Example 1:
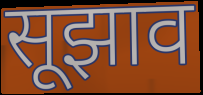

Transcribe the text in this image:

सूझाव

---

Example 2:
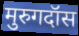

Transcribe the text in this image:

मुरुगदॉस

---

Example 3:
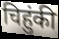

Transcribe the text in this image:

चिहुंकी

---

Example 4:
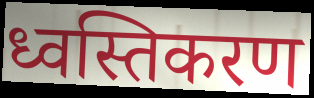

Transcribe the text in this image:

ध्वस्तिकरण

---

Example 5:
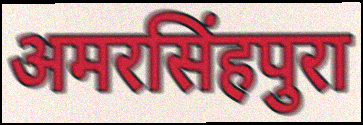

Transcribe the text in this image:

अमरसिंहपुरा